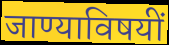
जाण्याविषयीं